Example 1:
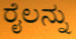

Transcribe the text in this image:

ರೈಲನ್ನು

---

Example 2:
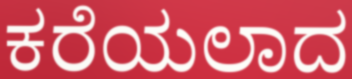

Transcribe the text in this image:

ಕರೆಯಲಾದ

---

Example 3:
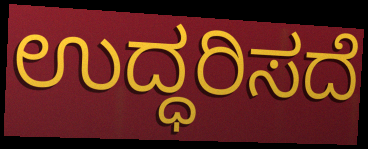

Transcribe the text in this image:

ಉದ್ಧರಿಸದೆ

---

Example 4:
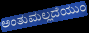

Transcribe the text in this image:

ಅಂತುಮಲ್ಲದೆಯುಂ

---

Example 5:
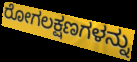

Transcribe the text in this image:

ರೋಗಲಕ್ಷಣಗಳನ್ನು